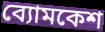
ব্যোমকেশ